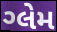
ગ્લેમ